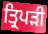
ਤ੍ਰਿਪਡ਼ੀ